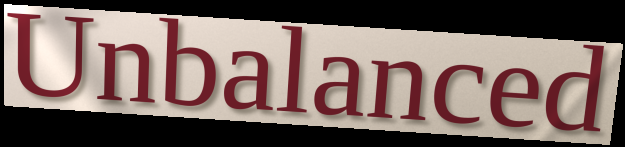
Unbalanced